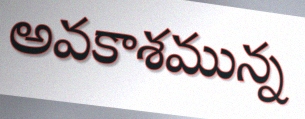
అవకాశమున్న